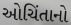
ઓચિંતાનો